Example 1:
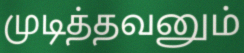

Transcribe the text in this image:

முடித்தவனும்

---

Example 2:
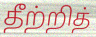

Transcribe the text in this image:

தீற்றித்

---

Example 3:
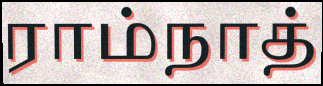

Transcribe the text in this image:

ராம்நாத்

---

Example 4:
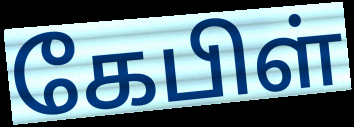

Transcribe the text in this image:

கேபிள்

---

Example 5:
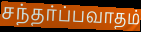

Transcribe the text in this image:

சந்தர்ப்பவாதம்